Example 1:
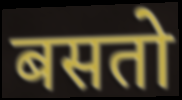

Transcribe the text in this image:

बसतो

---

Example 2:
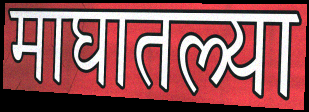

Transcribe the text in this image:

माघातल्या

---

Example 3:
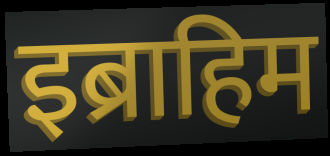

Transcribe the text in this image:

इब्राहिम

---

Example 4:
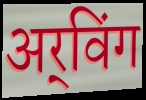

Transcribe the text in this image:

अर्विंग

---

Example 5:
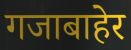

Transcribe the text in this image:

गजाबाहेर